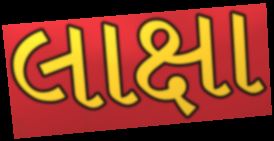
લાક્ષા